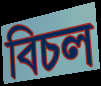
বিচল